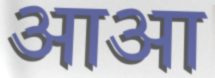
आआ